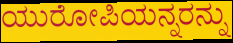
ಯುರೋಪಿಯನ್ನರನ್ನು